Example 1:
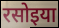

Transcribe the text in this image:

रसोइया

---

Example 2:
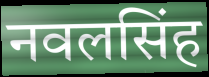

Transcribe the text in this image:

नवलसिंह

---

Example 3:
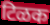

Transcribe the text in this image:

टिळक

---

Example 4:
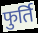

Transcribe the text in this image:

फुर्ति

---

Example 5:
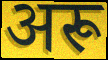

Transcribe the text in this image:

अरू